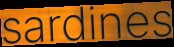
sardines